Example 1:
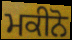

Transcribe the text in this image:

ਮਕੀਨੋ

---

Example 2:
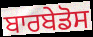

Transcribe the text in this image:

ਬਾਰਬੇਡੋਸ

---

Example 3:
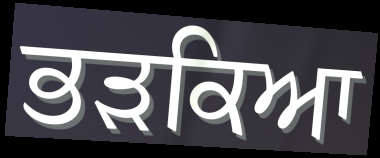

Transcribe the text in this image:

ਭੜਕਿਆ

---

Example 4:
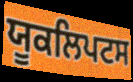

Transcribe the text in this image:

ਯੂਕਲਿਪਟਸ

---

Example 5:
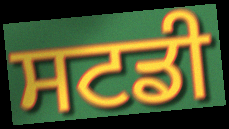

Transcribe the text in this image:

ਸਟਡੀ